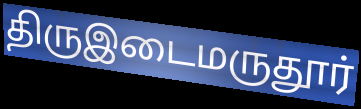
திருஇடைமருதூர்